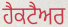
ਹੈਕਟੈਅਰ